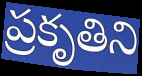
ప్రకృతిని